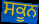
ਸਕੂਨ